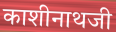
काशीनाथजी